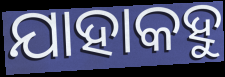
ଯାହାକହୁ